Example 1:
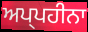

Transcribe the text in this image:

ਅਪ੍ਪਹੀਨਾ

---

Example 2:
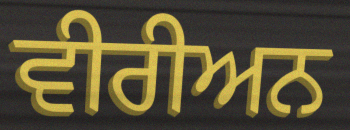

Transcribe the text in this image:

ਵੀਰੀਅਨ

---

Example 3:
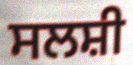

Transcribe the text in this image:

ਸਲਸ਼ੀ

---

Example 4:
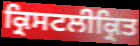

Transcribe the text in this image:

ਕ੍ਰਿਸਟਲੀਕ੍ਰਿਤ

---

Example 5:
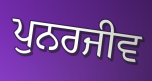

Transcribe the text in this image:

ਪੁਨਰਜੀਵ